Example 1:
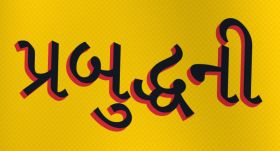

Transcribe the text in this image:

પ્રબુદ્ધની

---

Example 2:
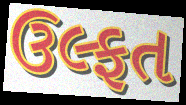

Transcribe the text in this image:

ઉલ્ફત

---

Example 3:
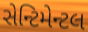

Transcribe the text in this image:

સેન્ટિમેન્ટલ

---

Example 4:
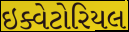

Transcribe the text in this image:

ઇક્વેટોરિયલ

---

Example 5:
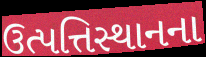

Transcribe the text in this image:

ઉત્પત્તિસ્થાનના